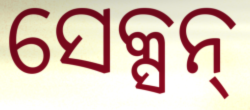
ସେକ୍ସନ୍